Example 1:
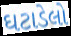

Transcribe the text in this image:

ઘટાડેલો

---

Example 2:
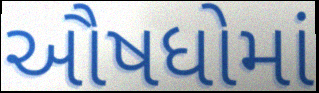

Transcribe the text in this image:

ઔષધોમાં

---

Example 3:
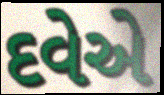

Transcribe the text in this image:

દવેએ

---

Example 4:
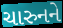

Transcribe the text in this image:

ચારુનને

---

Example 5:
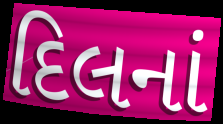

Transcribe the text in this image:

દિલનાં